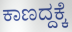
ಕಾಣದ್ದಕ್ಕೆ